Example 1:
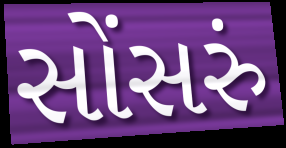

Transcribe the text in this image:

સોંસરું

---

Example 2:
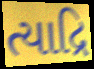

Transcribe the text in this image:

ત્યાદ્રિ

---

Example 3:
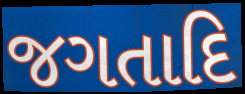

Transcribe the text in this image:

જગતાદિ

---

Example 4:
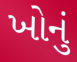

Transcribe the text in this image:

ખોનું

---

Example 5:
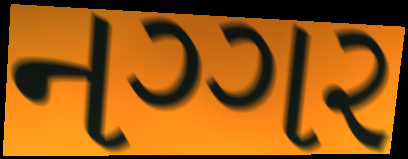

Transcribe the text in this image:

નગ્ગર